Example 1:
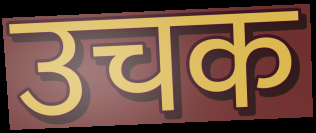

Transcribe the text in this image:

उचक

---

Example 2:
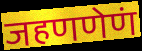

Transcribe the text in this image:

जहणणेणं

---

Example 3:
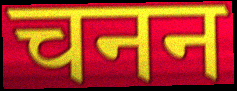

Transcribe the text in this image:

चनन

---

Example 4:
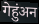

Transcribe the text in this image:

गेहुंअन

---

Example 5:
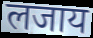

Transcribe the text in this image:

लजाय